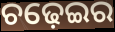
ଚଢ଼େଇର